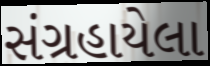
સંગ્રહાયેલા